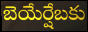
బెయేర్షేబకు